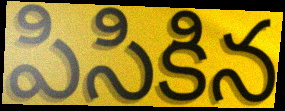
పిసికిన